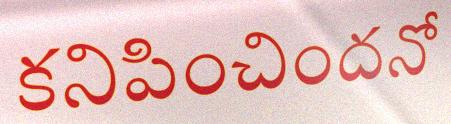
కనిపించిందనో